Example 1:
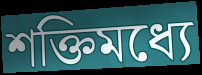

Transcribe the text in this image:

শক্তিমধ্যে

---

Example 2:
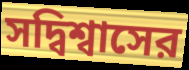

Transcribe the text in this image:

সদ্বিশ্বাসের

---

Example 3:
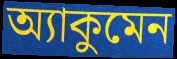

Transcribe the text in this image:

অ্যাকুমেন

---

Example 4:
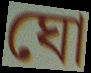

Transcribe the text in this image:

ঘো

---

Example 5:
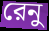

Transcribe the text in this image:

রেনু